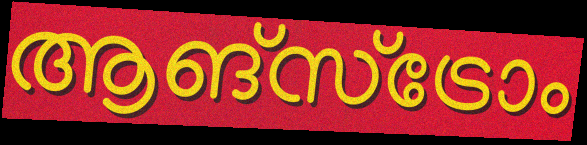
ആങ്സ്ട്രോം